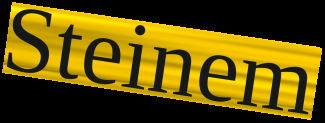
Steinem